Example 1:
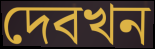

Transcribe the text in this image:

দেবখন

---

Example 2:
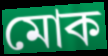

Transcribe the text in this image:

মোক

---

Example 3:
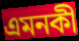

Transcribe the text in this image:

এমনকী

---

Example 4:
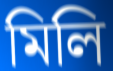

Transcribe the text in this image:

মিলি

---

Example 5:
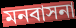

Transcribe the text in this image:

মনবাসনা